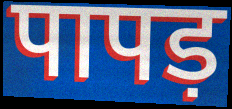
पापड़